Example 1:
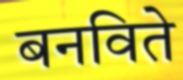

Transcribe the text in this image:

बनविते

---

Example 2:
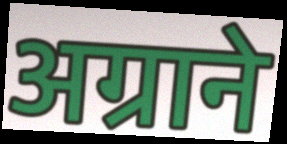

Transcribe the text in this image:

अग्राने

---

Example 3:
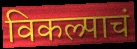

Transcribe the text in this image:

विकल्पाचं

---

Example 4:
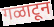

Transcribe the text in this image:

गळाटून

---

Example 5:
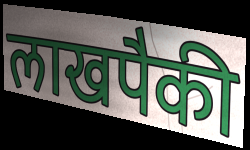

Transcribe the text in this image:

लाखपैकी